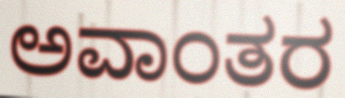
ಅವಾಂತರ